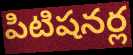
పిటిషనర్ల